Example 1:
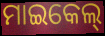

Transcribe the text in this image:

ମାଇକେଲ୍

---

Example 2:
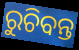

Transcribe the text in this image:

ରୁଚିବନ୍ତ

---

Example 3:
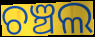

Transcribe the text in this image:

ଚଞ୍ଚଲ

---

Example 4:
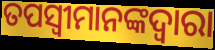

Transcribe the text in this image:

ତପସ୍ୱୀମାନଙ୍କଦ୍ୱାରା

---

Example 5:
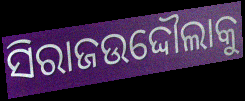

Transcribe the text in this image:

ସିରାଜଉଦ୍ଦୌଲାକୁ